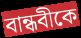
বান্ধবীকে